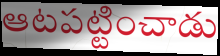
ఆటపట్టించాడు